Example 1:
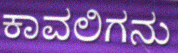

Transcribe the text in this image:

ಕಾವಲಿಗನು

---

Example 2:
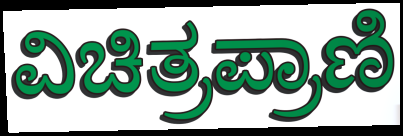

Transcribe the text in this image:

ವಿಚಿತ್ರಪ್ರಾಣಿ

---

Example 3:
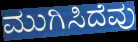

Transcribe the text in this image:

ಮುಗಿಸಿದೆವು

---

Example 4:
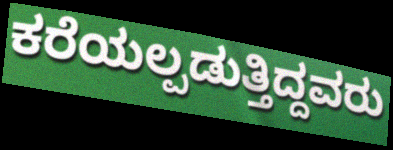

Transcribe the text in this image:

ಕರೆಯಲ್ಪಡುತ್ತಿದ್ದವರು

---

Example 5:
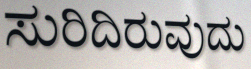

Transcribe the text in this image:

ಸುರಿದಿರುವುದು